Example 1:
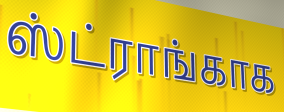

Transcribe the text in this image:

ஸ்ட்ராங்காக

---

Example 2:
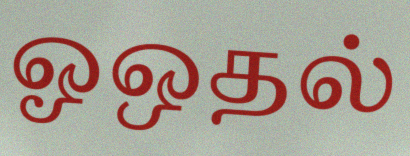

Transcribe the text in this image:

ஓஒதல்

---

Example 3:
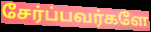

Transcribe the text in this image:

சேர்ப்பவர்களே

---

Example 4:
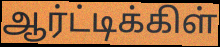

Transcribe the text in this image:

ஆர்ட்டிக்கிள்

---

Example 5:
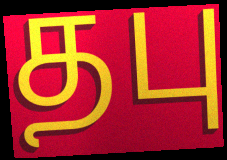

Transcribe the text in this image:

தபு